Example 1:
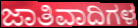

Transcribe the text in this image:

ಜಾತಿವಾದಿಗಳ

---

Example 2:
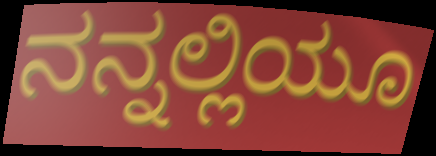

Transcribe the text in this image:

ನನ್ನಲ್ಲಿಯೂ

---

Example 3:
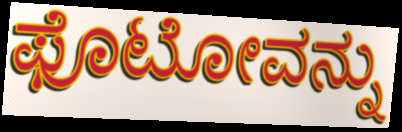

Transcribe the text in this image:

ಫೊಟೋವನ್ನು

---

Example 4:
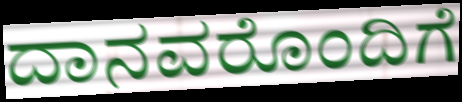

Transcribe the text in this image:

ದಾನವರೊಂದಿಗೆ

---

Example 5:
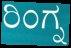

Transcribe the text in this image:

ರಿಂಗ್ನ